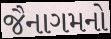
જૈનાગમનો